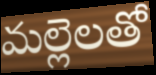
మల్లెలతో